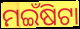
ମଇଁଷିଟା